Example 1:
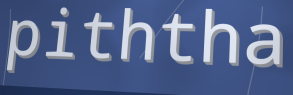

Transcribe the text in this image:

piththa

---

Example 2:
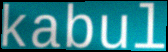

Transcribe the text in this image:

kabul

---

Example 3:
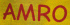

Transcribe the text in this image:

AMRO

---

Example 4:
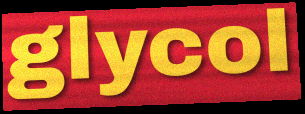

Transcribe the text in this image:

glycol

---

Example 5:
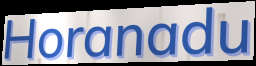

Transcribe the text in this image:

Horanadu